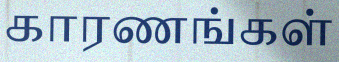
காரணங்கள்